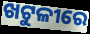
ଖଟୁଳୀରେ